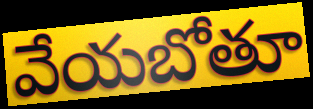
వేయబోతూ